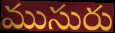
ముసురు